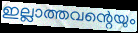
ഇല്ലാത്തവന്റെയും